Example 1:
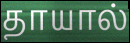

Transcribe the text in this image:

தாயால்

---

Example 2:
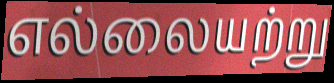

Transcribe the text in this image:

எல்லையற்று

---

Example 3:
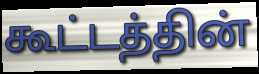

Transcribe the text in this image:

கூட்டத்தின்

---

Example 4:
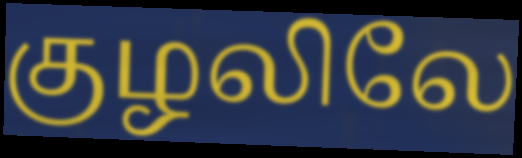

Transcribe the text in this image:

குழலிலே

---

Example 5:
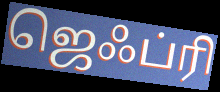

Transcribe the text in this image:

ஜெஃப்ரி